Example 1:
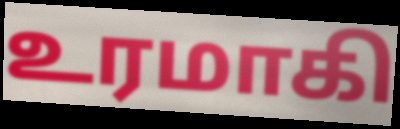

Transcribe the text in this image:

உரமாகி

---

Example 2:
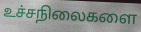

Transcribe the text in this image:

உச்சநிலைகளை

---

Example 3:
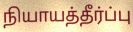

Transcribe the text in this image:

நியாயத்தீர்ப்பு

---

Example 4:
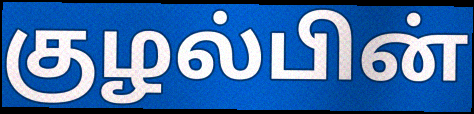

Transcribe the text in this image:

குழல்பின்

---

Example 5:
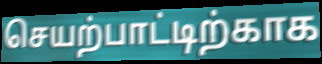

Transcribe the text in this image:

செயற்பாட்டிற்காக